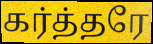
கர்த்தரே